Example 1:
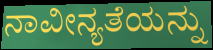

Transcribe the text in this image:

ನಾವೀನ್ಯತೆಯನ್ನು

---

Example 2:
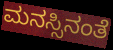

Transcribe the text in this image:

ಮನಸ್ಸಿನಂತೆ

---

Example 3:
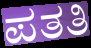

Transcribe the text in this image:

ಪತತಿ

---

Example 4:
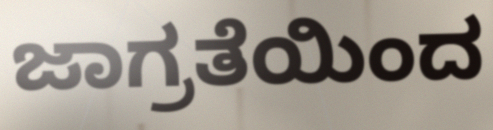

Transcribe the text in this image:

ಜಾಗ್ರತೆಯಿಂದ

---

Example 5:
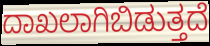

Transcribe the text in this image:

ದಾಖಲಾಗಿಬಿಡುತ್ತದೆ